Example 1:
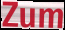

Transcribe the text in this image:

Zum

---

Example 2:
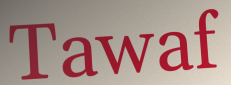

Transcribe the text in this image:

Tawaf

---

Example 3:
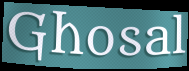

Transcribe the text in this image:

Ghosal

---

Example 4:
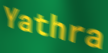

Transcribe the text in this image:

Yathra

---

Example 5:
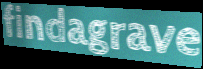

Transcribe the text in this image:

findagrave